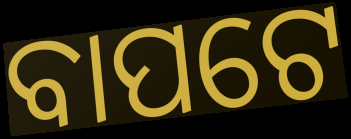
ବାପଟେ